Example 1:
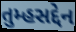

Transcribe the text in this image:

તુમ્હસદ્દેન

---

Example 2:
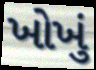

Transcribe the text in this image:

ખોખું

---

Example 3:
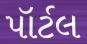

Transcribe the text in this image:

પૉર્ટલ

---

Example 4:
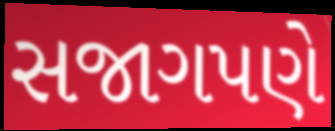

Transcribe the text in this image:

સજાગપણે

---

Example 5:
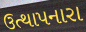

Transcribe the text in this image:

ઉત્થાપનારા